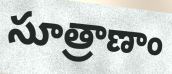
సూత్రాణాం